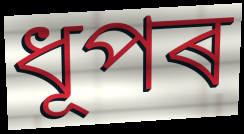
ধূপৰ